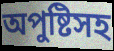
অপুষ্টিসহ